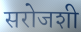
सरोजशी